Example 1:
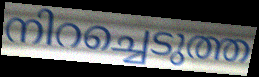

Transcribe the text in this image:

നിറച്ചെടുത്ത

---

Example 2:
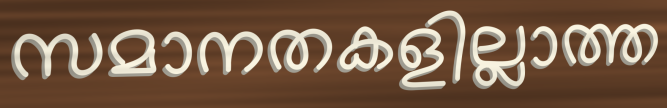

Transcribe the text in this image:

സമാനതകളില്ലാത്ത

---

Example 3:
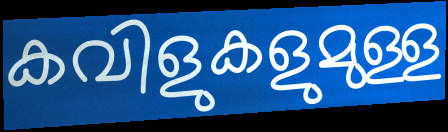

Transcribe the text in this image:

കവിളുകളുമുള്ള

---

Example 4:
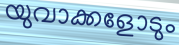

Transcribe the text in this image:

യുവാക്കളോടും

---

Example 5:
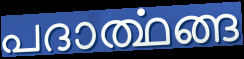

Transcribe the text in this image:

പദാൎത്ഥങ്ങ